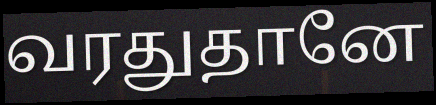
வரதுதானே